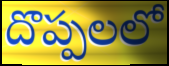
దొప్పలలో